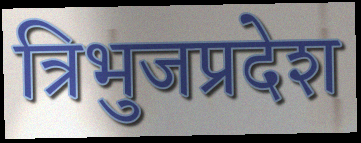
त्रिभुजप्रदेश